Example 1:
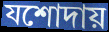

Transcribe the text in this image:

যশোদায়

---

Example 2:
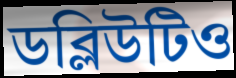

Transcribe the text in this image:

ডব্লিউটিও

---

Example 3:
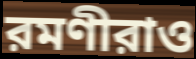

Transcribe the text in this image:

রমণীরাও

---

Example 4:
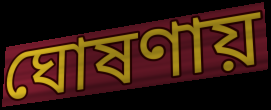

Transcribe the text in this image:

ঘোষণায়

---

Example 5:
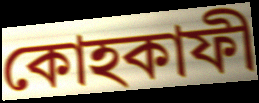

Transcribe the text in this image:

কোহকাফী